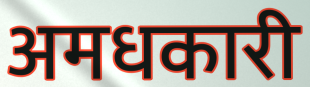
अमधकारी